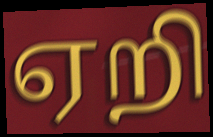
ஏறி